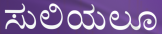
ಸುಲಿಯಲೂ